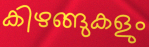
കിഴങ്ങുകളും